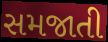
સમજાતી